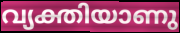
വ്യക്തിയാണു